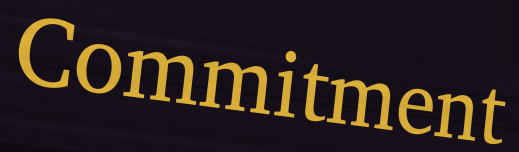
Commitment